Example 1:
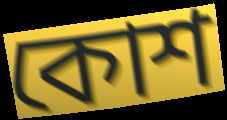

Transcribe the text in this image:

কোশ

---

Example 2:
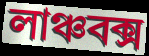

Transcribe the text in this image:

লাঞ্চবক্স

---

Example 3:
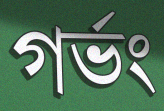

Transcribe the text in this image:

গর্ভং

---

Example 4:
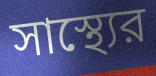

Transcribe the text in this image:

সাস্থ্যের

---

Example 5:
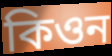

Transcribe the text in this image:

কিওন